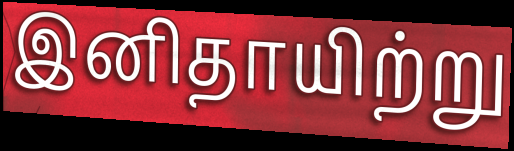
இனிதாயிற்று